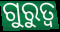
ଗୁରୁତ୍ୱ